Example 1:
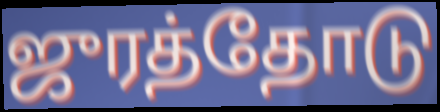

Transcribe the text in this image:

ஜுரத்தோடு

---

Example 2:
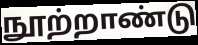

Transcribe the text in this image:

நூற்றாண்டு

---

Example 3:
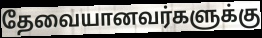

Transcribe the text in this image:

தேவையானவர்களுக்கு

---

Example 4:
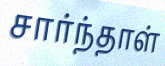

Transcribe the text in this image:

சார்ந்தாள்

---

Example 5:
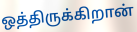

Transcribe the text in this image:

ஒத்திருக்கிறான்